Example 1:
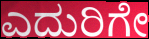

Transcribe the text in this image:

ಎದುರಿಗೇ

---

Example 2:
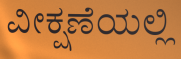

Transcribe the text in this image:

ವೀಕ್ಷಣೆಯಲ್ಲಿ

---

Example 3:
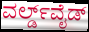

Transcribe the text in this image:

ವರ್ಲ್ಡ್‌ವೈಡ್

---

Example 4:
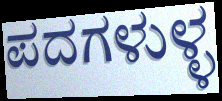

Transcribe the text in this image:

ಪದಗಳುಳ್ಳ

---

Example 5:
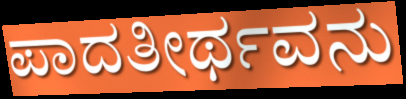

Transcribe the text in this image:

ಪಾದತೀರ್ಥವನು